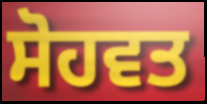
ਸੋਹਵਤ